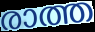
രാത്ത